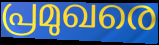
പ്രമുഖരെ